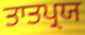
ਤਾਤਪ੍ਰਯ